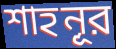
শাহনূর